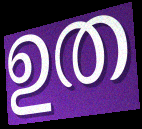
ഉത